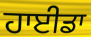
ਹਾਈਡਾ